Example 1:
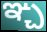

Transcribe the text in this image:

ఞ్చ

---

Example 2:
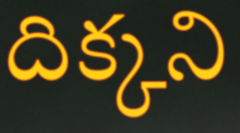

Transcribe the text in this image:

దిక్కని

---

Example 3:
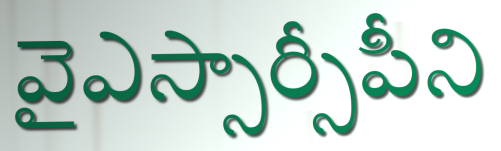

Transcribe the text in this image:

వైఎస్సార్సీపీని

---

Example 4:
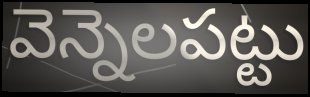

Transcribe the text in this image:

వెన్నెలపట్టు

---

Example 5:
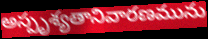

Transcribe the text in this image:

అస్పృశ్యతానివారణమును